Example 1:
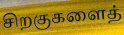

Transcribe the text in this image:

சிறகுகளைத்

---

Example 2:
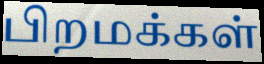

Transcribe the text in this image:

பிறமக்கள்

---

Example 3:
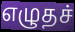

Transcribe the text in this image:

எழுதச்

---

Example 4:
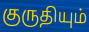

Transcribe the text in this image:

குருதியும்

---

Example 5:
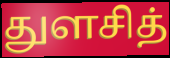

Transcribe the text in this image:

துளசித்